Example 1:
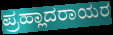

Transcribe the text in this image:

ಪ್ರಹ್ಲಾದರಾಯರ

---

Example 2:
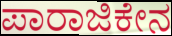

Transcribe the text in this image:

ಪಾರಾಜಿಕೇನ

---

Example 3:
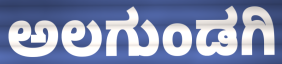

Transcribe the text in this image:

ಅಲಗುಂಡಗಿ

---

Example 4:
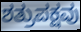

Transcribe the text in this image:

ಶತ್ರುಪಕ್ಷವು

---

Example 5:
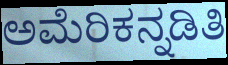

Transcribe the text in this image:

ಅಮೆರಿಕನ್ನಡಿತಿ